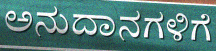
ಅನುದಾನಗಳಿಗೆ